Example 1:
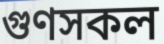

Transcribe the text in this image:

গুণসকল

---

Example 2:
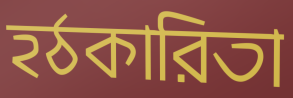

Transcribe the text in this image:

হঠকারিতা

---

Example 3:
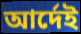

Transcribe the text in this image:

আর্দেই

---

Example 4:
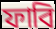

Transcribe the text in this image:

ফাবি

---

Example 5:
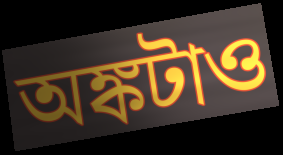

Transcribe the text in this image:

অঙ্কটাও